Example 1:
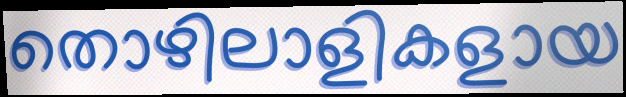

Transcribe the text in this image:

തൊഴിലാളികളായ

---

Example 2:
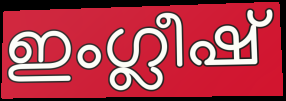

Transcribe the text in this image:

ഇംഗ്ലീഷ്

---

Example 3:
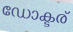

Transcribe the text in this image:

ഡോക്ടര്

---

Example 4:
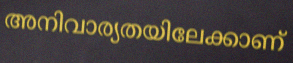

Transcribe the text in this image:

അനിവാര്യതയിലേക്കാണ്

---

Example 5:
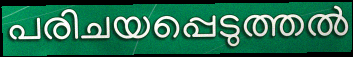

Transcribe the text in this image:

പരിചയപ്പെടുത്തൽ